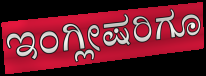
ಇಂಗ್ಲೀಷರಿಗೂ